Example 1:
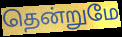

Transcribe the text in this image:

தென்றுமே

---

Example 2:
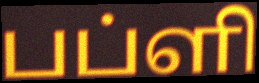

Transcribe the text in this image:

பப்ளி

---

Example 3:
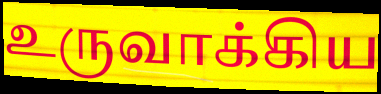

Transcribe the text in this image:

உருவாக்கிய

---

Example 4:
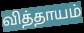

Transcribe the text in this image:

வித்தாயம்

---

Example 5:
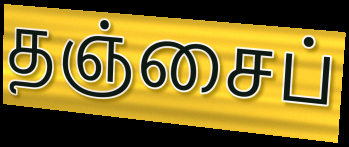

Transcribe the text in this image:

தஞ்சைப்